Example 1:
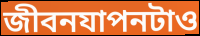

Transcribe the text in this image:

জীবনযাপনটাও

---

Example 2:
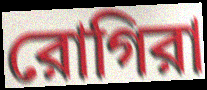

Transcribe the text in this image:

রোগিরা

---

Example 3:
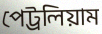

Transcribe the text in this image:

পেট্রলিয়াম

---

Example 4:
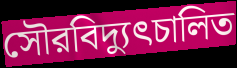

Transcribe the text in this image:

সৌরবিদ্যুৎচালিত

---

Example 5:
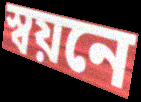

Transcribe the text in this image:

স্বয়নে